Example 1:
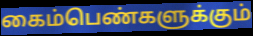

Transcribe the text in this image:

கைம்பெண்களுக்கும்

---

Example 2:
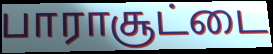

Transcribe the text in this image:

பாராசூட்டை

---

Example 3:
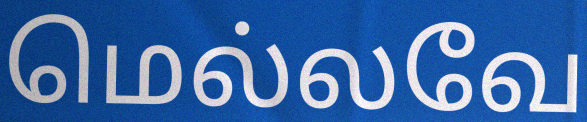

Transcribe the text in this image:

மெல்லவே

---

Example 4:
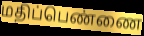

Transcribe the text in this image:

மதிப்பெண்ணை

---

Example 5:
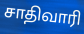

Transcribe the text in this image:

சாதிவாரி